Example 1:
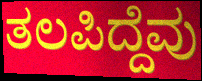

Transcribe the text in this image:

ತಲಪಿದ್ದೆವು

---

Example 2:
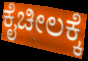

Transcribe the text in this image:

ಕೈಚೀಲಕ್ಕೆ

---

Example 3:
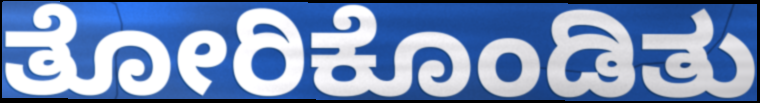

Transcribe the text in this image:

ತೋರಿಕೊಂಡಿತು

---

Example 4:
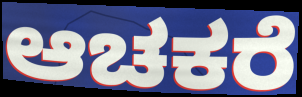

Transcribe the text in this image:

ಆಚಕರೆ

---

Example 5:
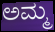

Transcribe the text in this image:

ಅಮ್ಮ